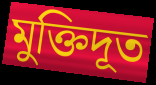
মুক্তিদূত